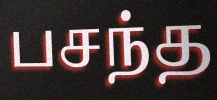
பசந்த